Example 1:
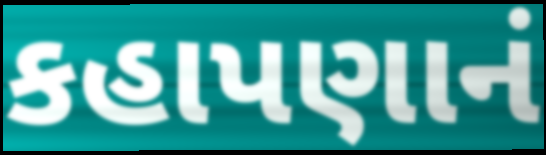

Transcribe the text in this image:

કહાપણાનં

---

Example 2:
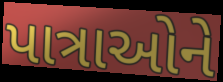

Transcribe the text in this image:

પાત્રાઓને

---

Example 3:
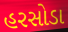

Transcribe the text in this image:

હરસોડા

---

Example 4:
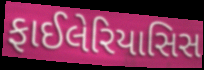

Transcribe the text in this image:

ફાઈલેરિયાસિસ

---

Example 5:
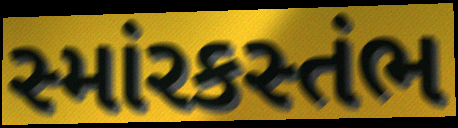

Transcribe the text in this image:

સ્માંરકસ્તંભ